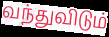
வந்துவிடும்